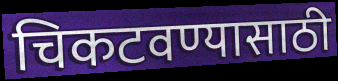
चिकटवण्यासाठी